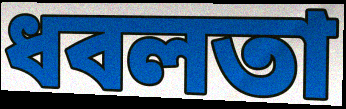
ধবলতা